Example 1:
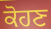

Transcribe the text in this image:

ਕੋਹਣ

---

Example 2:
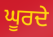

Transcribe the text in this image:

ਘੂਰਦੇ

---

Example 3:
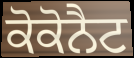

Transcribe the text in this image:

ਕੋਕੋਨੈਟ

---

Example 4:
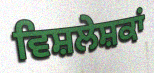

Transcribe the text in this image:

ਵਿਸ਼ਲੇਸ਼ਕਾਂ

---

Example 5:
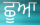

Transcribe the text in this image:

ਛੂਆ